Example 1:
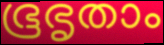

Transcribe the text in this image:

ഭൂഭൃതാം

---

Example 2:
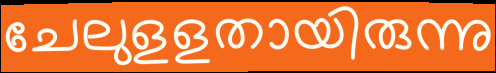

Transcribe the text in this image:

ചേലുളളതായിരുന്നു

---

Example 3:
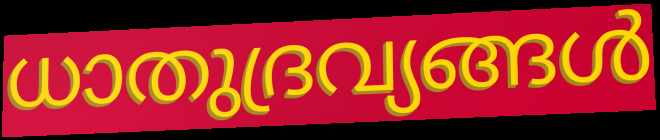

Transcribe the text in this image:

ധാതുദ്രവ്യങ്ങൾ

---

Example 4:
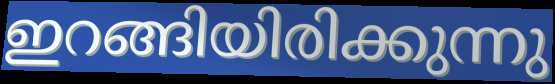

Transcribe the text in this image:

ഇറങ്ങിയിരിക്കുന്നു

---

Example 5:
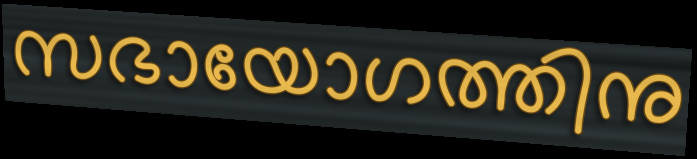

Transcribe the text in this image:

സഭായോഗത്തിനു